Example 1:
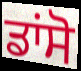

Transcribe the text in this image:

ਡਾਂਸੋ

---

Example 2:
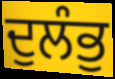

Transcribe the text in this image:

ਦੁਲੰਭੁ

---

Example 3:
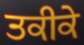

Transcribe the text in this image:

ਤਕੀਕੇ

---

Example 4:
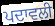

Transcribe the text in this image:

ਪਦਾਵਲੀ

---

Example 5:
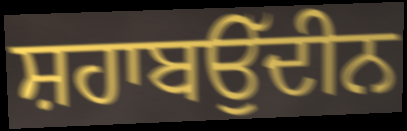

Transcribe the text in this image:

ਸ਼ਹਾਬਉੱਦੀਨ